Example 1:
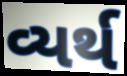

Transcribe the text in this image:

વ્યર્થ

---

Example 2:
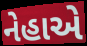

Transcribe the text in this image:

નેહાએ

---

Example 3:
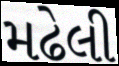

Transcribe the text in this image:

મઢેલી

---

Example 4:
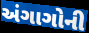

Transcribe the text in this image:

અંગાગોની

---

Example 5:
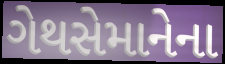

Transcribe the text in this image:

ગેથસેમાનેના